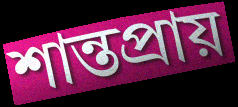
শান্তপ্রায়